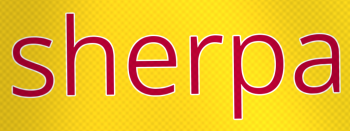
sherpa